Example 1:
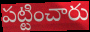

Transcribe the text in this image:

పట్టించారు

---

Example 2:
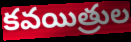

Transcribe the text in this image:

కవయిత్రుల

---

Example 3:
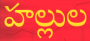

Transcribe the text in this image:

హల్లుల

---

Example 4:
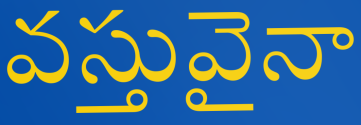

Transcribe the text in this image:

వస్తువైనా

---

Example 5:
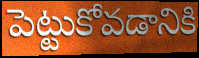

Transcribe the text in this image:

పెట్టుకోవడానికి